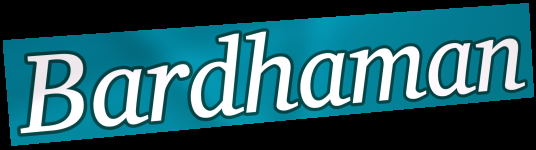
Bardhaman